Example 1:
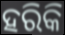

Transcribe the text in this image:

ହରିକି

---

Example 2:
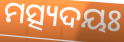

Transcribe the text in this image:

ମତ୍ସ୍ୟଦୟଃ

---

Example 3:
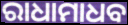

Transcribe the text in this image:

ରାଧାମାଧବ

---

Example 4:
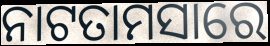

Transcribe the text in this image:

ନାଟତାମସାରେ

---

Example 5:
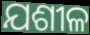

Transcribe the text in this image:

ଯଶୀଳ